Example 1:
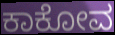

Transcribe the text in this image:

ಕಾಕೋವ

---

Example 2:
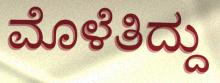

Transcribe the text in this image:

ಮೊಳೆತಿದ್ದು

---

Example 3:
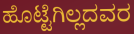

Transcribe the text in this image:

ಹೊಟ್ಟೆಗಿಲ್ಲದವರ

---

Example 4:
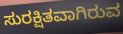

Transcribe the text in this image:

ಸುರಕ್ಷಿತವಾಗಿರುವ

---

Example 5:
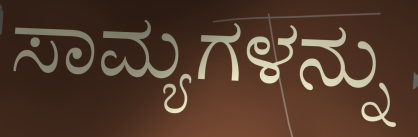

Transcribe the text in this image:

ಸಾಮ್ಯಗಳನ್ನು